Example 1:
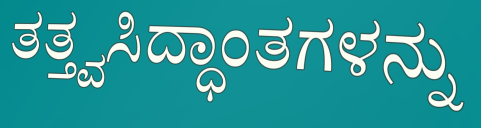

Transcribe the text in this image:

ತತ್ತ್ವಸಿದ್ಧಾಂತಗಳನ್ನು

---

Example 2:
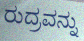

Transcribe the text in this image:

ರುದ್ರವನ್ನು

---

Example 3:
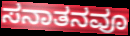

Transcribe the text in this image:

ಸನಾತನವೂ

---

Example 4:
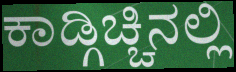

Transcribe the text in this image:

ಕಾಡ್ಗಿಚ್ಚಿನಲ್ಲಿ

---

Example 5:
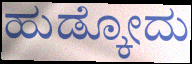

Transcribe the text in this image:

ಹುಡ್ಕೋದು